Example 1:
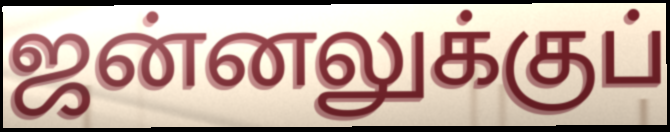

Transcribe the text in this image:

ஜன்னலுக்குப்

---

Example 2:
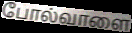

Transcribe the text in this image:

போல்வாளை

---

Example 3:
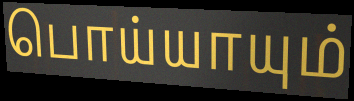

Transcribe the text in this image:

பொய்யாயும்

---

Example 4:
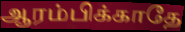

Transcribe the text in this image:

ஆரம்பிக்காதே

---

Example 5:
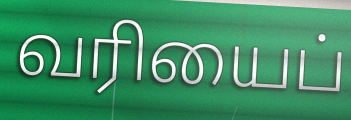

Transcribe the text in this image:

வரியைப்